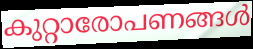
കുറ്റാരോപണങ്ങൾ